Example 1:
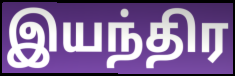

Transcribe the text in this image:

இயந்திர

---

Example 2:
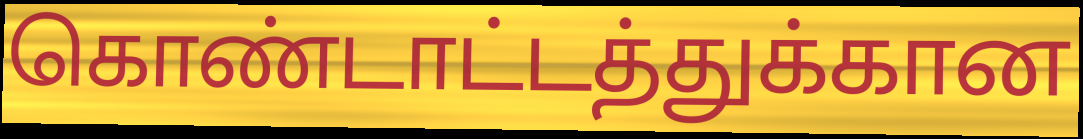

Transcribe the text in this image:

கொண்டாட்டத்துக்கான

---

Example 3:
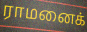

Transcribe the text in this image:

ராமனைக்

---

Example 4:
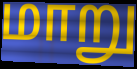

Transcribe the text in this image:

மாறு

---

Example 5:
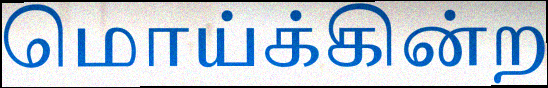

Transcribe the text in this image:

மொய்க்கின்ற